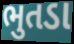
ભુતડા